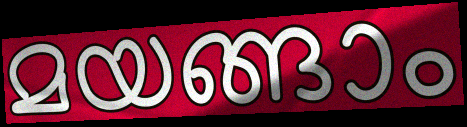
മയങ്ങാം